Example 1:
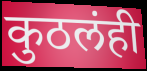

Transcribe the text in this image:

कुठलंही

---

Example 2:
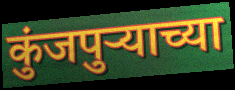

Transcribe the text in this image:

कुंजपुऱ्याच्या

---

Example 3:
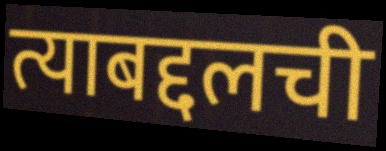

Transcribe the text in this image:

त्याबद्दलची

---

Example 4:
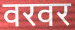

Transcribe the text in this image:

वरवर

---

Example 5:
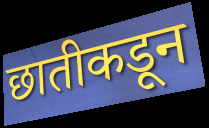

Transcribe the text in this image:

छातीकडून